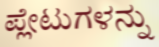
ಪ್ಲೇಟುಗಳನ್ನು